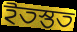
ইতস্তত